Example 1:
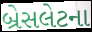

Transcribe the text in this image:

બ્રેસલેટના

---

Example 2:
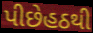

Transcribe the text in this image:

પીછેહઠથી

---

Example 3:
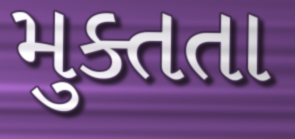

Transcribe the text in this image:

મુક્તતા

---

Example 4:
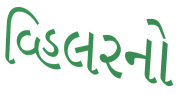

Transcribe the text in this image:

વ્હિલરનો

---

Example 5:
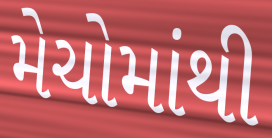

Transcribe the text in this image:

મેચોમાંથી